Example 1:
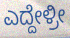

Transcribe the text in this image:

ಎದ್ದೇಳ್ರೀ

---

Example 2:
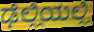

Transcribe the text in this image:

ಢೆಲ್ಲಿಯಲ್ಲಿ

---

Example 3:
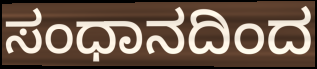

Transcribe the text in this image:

ಸಂಧಾನದಿಂದ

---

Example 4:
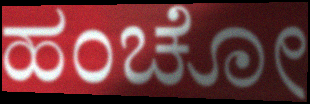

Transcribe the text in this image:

ಹಂಚೋ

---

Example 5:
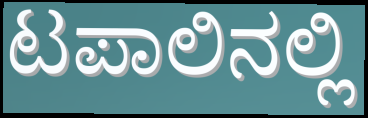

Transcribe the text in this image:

ಟಪಾಲಿನಲ್ಲಿ